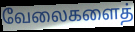
வேலைகளைத்